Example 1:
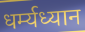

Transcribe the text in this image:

धर्म्यध्यान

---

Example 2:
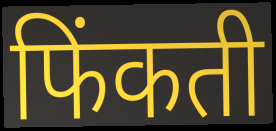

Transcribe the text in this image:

फिंकती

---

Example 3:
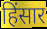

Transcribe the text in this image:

हिंसार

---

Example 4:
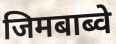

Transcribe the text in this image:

जिमबाब्वे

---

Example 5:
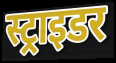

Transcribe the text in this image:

स्ट्राइडर